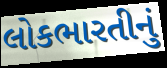
લોકભારતીનું